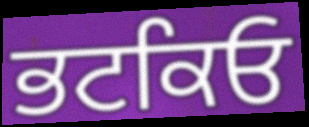
ਭਟਕਿਓ